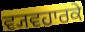
ਵ੍ਯਵਹਾਰਕੇ